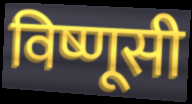
विष्णूसी